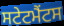
ਸਟੇਟਮੈਂਟਸ